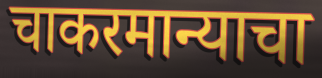
चाकरमान्याचा